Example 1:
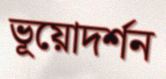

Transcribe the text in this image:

ভূয়োদর্শন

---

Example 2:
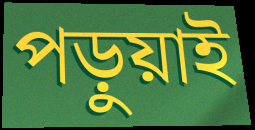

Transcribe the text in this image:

পড়ুয়াই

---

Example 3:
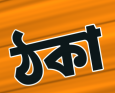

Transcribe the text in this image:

ঠকা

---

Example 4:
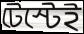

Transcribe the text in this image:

টেস্টেই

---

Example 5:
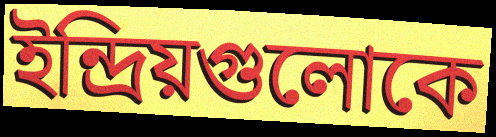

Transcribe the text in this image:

ইন্দ্রিয়গুলোকে